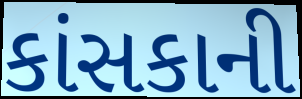
કાંસકાની